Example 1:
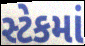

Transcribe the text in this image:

સ્ટેકમાં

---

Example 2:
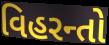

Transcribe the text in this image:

વિહરન્તો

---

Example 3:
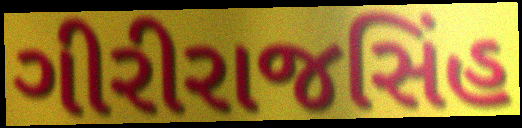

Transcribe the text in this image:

ગીરીરાજસિંહ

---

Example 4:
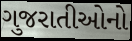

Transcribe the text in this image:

ગુજરાતીઓનો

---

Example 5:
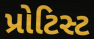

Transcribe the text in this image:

પ્રોટિસ્ટ